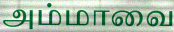
அம்மாவை